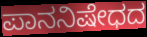
ಪಾನನಿಷೇಧದ